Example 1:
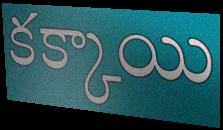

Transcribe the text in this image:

కక్కాయి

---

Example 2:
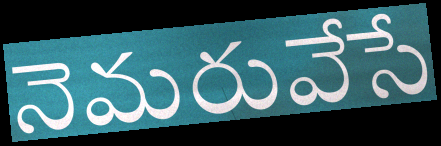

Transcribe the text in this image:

నెమరువేసే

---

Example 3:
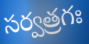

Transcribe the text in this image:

సర్వత్రగః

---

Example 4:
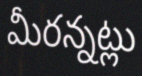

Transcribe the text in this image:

మీరన్నట్లు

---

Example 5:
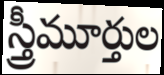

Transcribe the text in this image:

స్త్రీమూర్తుల